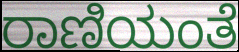
ರಾಣಿಯಂತೆ